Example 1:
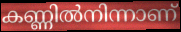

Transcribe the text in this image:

കണ്ണിൽനിന്നാണ്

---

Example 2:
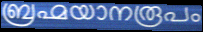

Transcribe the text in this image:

ബ്രഹ്മയാനരൂപം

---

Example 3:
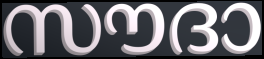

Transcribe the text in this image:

സൗദാ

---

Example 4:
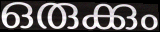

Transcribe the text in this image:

ഒരുക്കും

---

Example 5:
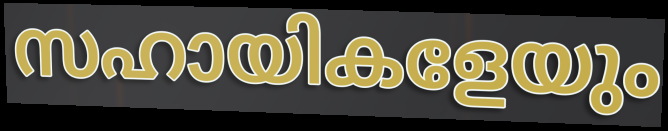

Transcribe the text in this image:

സഹായികളേയും